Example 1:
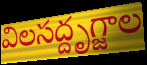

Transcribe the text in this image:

విలసద్దృగ్జాల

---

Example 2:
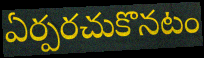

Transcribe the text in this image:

ఏర్పరచుకొనటం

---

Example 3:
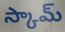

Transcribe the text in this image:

స్కామ్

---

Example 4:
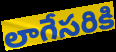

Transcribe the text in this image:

లాగేసరికి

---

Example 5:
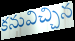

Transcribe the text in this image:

కనువిచ్చిన